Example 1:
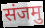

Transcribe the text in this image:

संजमु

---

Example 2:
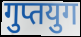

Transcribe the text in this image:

गुप्तयुग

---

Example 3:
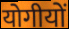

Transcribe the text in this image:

योगीयों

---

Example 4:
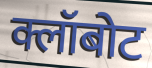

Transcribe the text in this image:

क्लॉबोट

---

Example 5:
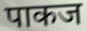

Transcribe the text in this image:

पाकज